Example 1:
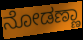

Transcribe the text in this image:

ನೋಡಣ್ಣಾ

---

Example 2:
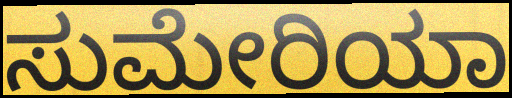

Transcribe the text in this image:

ಸುಮೇರಿಯಾ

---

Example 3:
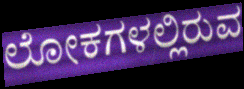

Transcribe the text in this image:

ಲೋಕಗಳಲ್ಲಿರುವ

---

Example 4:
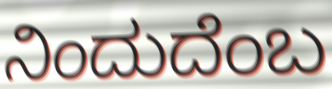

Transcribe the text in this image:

ನಿಂದುದೆಂಬ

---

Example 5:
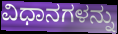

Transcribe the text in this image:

ವಿಧಾನಗಳನ್ನು